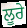
ਲੂਰੇ